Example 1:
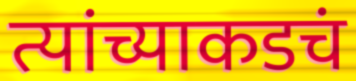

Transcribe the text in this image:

त्यांच्याकडचं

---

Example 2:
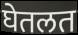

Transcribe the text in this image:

घेतलत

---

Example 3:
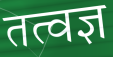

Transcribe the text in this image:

तत्वज्ञ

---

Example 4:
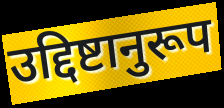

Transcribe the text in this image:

उद्दिष्टानुरूप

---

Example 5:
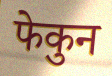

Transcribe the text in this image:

फेकुन